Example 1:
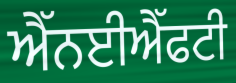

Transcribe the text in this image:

ਐੱਨਈਐੱਫਟੀ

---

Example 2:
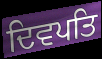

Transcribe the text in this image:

ਦਿਵਪਤਿ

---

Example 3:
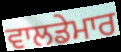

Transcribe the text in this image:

ਵਾਲਡੇਮਾਰ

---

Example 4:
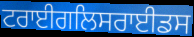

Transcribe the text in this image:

ਟਰਾਈਗਲਿਸਰਾਈਡਸ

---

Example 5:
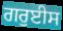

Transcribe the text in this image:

ਗਰੁਈਸ